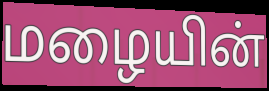
மழையின்